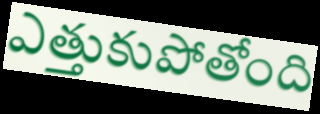
ఎత్తుకుపోతోంది